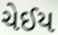
ચેઈય